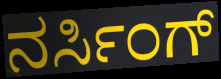
ನರ್ಸಿಂಗ್